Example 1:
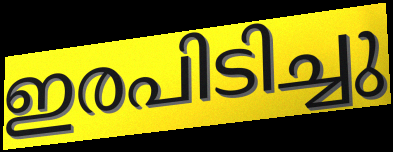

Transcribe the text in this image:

ഇരപിടിച്ചു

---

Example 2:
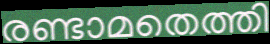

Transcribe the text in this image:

രണ്ടാമതെത്തി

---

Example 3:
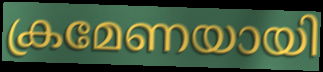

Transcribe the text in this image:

ക്രമേണയായി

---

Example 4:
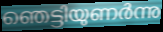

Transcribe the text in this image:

ഞെട്ടിയുണർന്നു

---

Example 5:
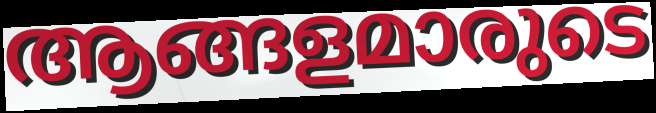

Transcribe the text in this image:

ആങ്ങളമാരുടെ